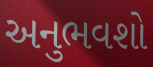
અનુભવશો